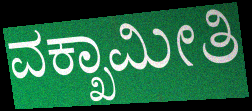
ವಕ್ಖಾಮೀತಿ